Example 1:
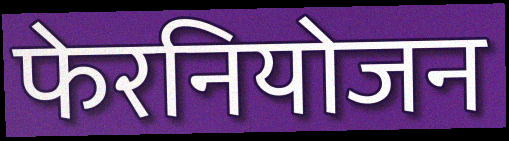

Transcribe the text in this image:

फेरनियोजन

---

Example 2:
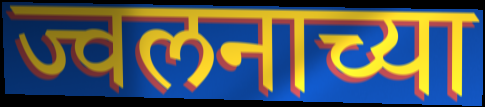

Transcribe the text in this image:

ज्वलनाच्या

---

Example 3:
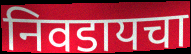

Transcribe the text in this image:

निवडायचा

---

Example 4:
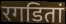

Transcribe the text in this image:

रगडितां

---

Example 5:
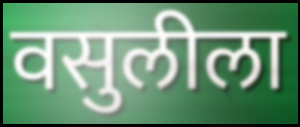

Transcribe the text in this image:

वसुलीला